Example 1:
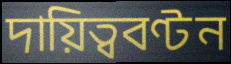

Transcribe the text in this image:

দায়িত্ববণ্টন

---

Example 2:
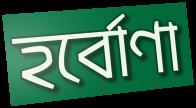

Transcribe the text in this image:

হর্বোণা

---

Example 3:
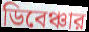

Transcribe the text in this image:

ডিবেঞ্চার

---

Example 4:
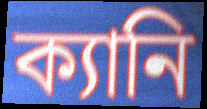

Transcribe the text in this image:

ক্যানি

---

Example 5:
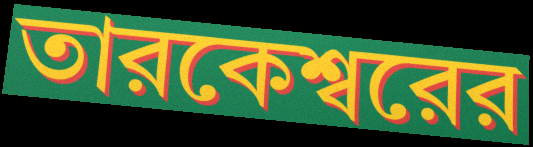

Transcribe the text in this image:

তারকেশ্বরের